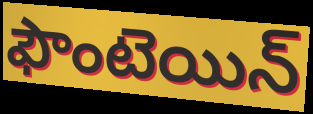
ఫౌంటెయిన్